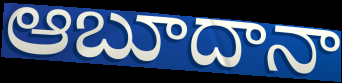
ఆబూదానా